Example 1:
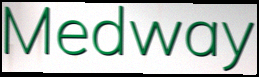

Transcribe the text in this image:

Medway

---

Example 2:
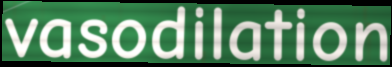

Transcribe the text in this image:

vasodilation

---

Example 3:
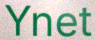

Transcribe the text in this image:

Ynet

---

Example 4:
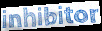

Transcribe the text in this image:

inhibitor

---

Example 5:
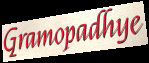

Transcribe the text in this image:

Gramopadhye